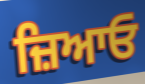
ਜ਼ਿਆਓ